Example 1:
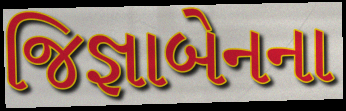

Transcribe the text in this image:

જિજ્ઞાબેનના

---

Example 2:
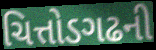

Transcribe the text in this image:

ચિત્તોડગઢની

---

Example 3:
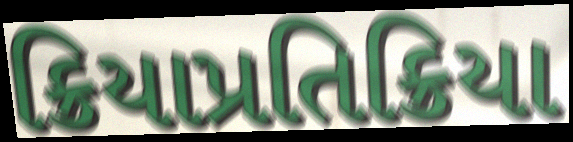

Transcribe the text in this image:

ક્રિયાપ્રતિક્રિયા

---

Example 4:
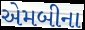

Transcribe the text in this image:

એમબીના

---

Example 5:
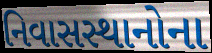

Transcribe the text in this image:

નિવાસસ્થાનોના